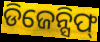
ଡିଜେନ୍ସିଫ୍